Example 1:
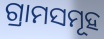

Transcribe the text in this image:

ଗ୍ରାମସମୂହ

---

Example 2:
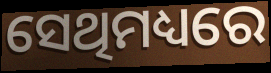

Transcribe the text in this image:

ସେଥିମଧ୍ୟରେ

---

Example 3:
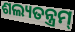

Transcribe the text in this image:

ଶଲ୍ୟତନ୍ତ୍ରମ୍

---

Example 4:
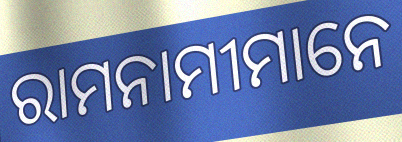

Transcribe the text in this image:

ରାମନାମୀମାନେ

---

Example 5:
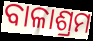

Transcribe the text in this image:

ବାଳାଶ୍ରମ